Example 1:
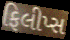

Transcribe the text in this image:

ફિલીપ્સ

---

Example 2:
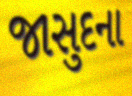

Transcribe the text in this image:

જાસુદના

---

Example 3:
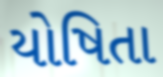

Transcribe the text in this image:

યોષિતા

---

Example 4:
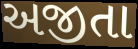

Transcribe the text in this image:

અજીતા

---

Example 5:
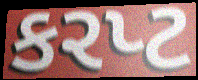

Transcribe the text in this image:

કરપ્ટ